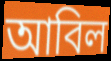
আবিল